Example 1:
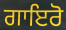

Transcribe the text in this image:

ਗਾਇਰੋ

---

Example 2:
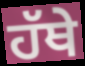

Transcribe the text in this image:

ਹੱਥੇ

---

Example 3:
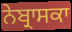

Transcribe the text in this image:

ਨੇਬ੍ਰਾਸਕਾ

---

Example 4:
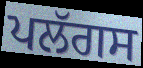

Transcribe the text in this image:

ਪਲੱਗਸ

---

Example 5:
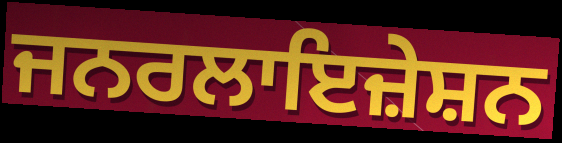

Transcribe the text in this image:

ਜਨਰਲਾਇਜ਼ੇਸ਼ਨ